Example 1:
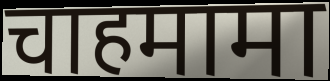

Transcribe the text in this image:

चाहमामा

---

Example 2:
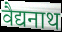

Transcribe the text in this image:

वैद्यनाथ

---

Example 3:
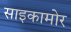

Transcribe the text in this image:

साइकामोर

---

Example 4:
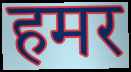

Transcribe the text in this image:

हमर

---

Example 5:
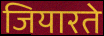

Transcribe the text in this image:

जियारते